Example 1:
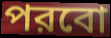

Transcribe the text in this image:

পরবো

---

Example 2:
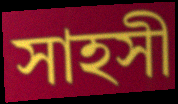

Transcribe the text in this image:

সাহসী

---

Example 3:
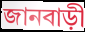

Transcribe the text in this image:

জানবাড়ী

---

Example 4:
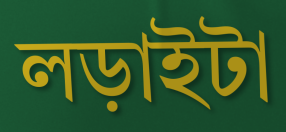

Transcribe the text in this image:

লড়াইটা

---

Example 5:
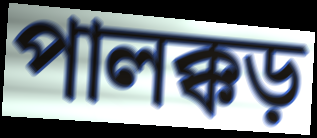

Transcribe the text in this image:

পালক্কড়